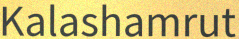
Kalashamrut